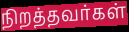
நிறத்தவர்கள்